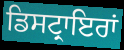
ਡਿਸਟ੍ਰਾਇਰਾਂ